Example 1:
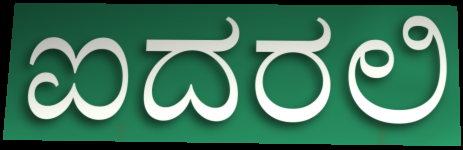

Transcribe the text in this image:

ಐದರಲಿ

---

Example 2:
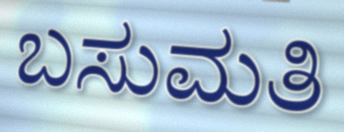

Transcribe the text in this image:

ಬಸುಮತಿ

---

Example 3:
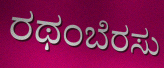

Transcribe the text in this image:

ರಥಂಬೆರಸು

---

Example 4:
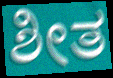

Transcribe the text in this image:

ಶೀತ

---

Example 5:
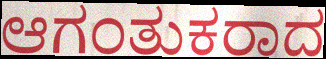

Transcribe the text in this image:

ಆಗಂತುಕರಾದ